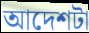
আদেশটা